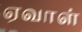
ஏவாள்